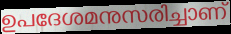
ഉപദേശമനുസരിച്ചാണ്